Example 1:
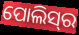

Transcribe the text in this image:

ପୋଲିସ୍‍ର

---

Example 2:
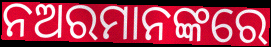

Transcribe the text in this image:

ନଅରମାନଙ୍କରେ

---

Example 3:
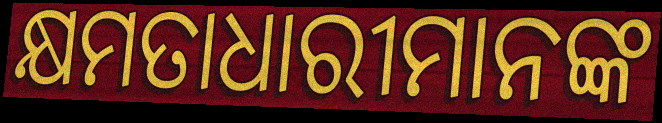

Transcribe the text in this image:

କ୍ଷମତାଧାରୀମାନଙ୍କ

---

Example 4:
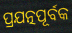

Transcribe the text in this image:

ପ୍ରଯତ୍ନପୂର୍ବକ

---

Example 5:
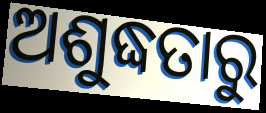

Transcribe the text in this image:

ଅଶୁଦ୍ଧତାରୁ